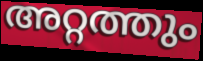
അറ്റത്തും